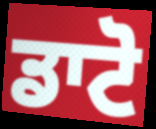
ਡਾਟੋ